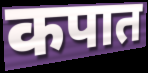
कपात